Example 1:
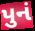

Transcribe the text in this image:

પુનં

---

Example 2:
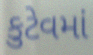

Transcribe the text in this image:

કુટેવમાં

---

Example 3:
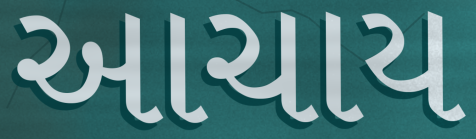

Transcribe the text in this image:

આચાય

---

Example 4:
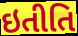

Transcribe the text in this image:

ઇતીતિ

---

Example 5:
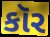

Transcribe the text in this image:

કૉર